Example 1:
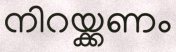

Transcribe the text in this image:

നിറയ്ക്കണം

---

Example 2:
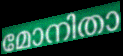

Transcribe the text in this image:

മോനിതാ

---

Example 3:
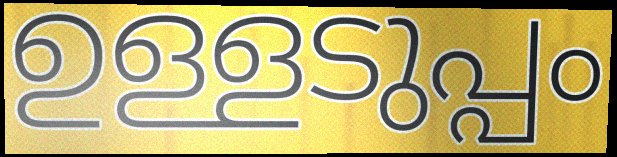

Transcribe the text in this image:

ഉള്ളടുപ്പം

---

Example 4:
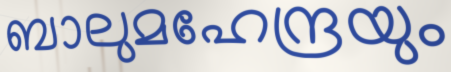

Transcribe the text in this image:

ബാലുമഹേന്ദ്രയും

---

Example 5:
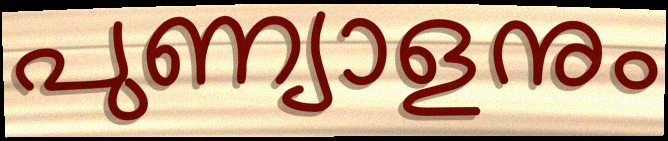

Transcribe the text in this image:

പുണ്യാളനും